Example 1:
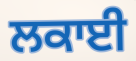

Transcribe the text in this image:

ਲਕਾਈ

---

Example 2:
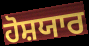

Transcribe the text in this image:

ਹੋਸ਼ਯਾਰ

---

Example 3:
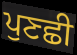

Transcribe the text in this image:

ਪੁਣਛੀ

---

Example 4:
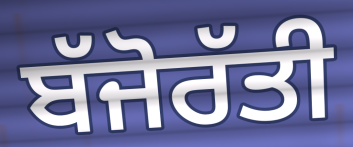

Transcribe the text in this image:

ਬੱਜੋਰੱਤੀ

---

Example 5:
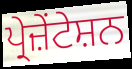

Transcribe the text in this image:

ਪ੍ਰੇਜ਼ੇਂਟੇਸ਼ਨ